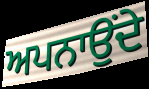
ਅਪਨਾਉਂਦੇ